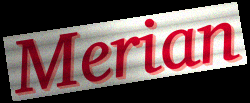
Merian